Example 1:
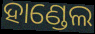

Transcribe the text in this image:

ହାଣ୍ଡେଲ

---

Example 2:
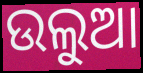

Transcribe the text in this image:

ଉଲୁଆ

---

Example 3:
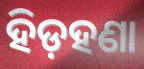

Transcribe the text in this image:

ହିଡ଼ହଣା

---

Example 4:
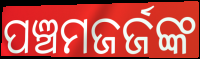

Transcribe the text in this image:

ପଞ୍ଚମଜର୍ଜଙ୍କ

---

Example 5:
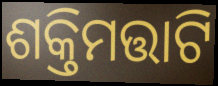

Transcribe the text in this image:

ଶକ୍ତିମତ୍ତାଟି